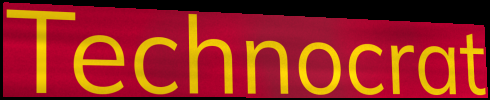
Technocrat